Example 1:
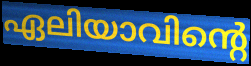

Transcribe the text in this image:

ഏലിയാവിന്റെ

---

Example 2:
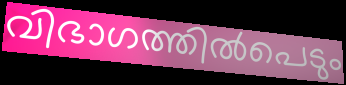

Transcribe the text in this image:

വിഭാഗത്തിൽപെടും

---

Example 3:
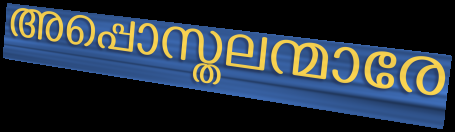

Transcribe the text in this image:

അപ്പൊസ്തലന്മാരേ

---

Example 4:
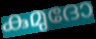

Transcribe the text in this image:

കുമുദോ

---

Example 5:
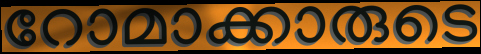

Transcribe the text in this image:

റോമാക്കാരുടെ